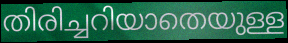
തിരിച്ചറിയാതെയുള്ള